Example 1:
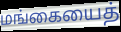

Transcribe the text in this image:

மங்கையைத்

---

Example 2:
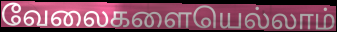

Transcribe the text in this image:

வேலைகளையெல்லாம்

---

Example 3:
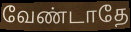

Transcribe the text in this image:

வேண்டாதே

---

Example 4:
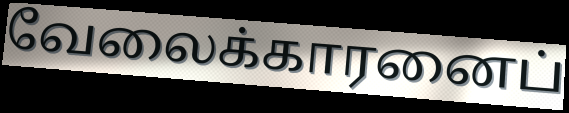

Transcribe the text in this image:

வேலைக்காரனைப்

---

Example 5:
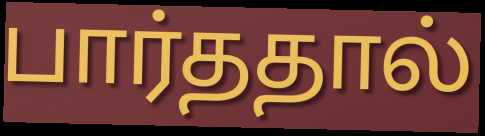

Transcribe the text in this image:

பார்ததால்